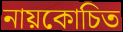
নায়কোচিত